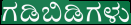
ಗಡಿಬಿಡಿಗಳು